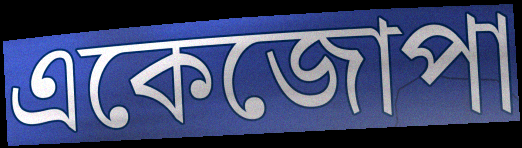
একেজোপা